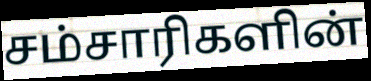
சம்சாரிகளின்